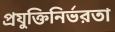
প্রযুক্তিনির্ভরতা